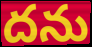
దను